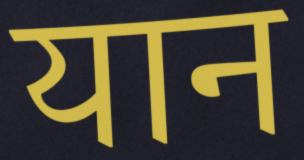
यान